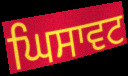
ਘਿਸਾਵਟ